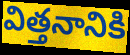
విత్తనానికి